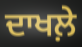
ਦਾਖਲ਼ੇ